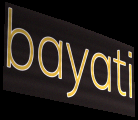
bayati